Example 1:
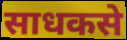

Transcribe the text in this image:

साधकसे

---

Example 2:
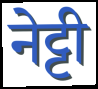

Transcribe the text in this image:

नेट्टी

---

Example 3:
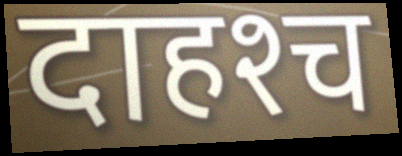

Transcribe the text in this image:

दाहश्च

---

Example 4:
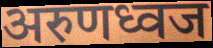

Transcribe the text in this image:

अरुणध्वज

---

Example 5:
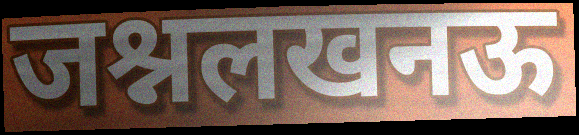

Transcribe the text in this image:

जश्नलखनऊ